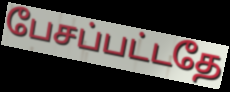
பேசப்பட்டதே